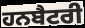
ਹਨਬੈਟਰੀ